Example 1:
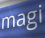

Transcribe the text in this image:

magi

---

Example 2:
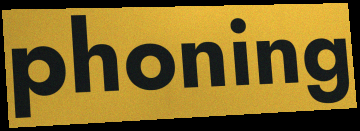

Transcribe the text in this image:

phoning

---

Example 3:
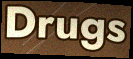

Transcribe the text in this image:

Drugs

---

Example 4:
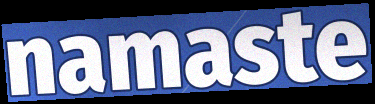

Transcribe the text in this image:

namaste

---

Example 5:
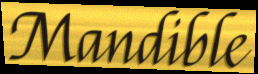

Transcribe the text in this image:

Mandible